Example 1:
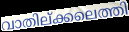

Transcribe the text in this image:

വാതില്ക്കലെത്തി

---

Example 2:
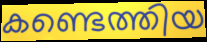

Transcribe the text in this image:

കണ്ടെത്തിയ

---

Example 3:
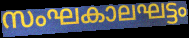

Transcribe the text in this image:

സംഘകാലഘട്ടം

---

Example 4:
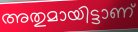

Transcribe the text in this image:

അതുമായിട്ടാണ്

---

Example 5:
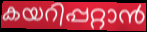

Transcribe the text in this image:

കയറിപ്പറ്റാൻ